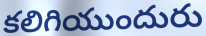
కలిగియుందురు